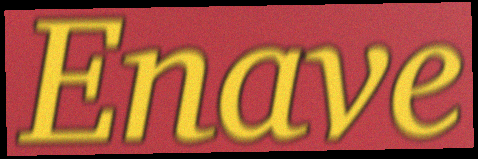
Enave